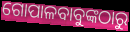
ଗୋପାଳବାବୁଙ୍କଠାରୁ